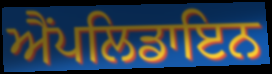
ਐੰਪਲਿਡਾਇਨ